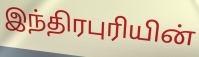
இந்திரபுரியின்